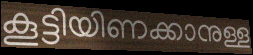
കൂട്ടിയിണക്കാനുള്ള